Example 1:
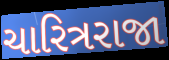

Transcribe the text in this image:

ચારિત્રરાજા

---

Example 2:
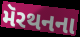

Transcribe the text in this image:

મૅરથનના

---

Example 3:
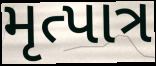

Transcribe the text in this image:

મૃત્પાત્ર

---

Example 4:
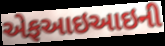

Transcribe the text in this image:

એફઆઇઆઇની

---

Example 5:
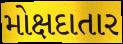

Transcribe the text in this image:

મોક્ષદાતાર